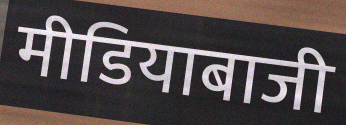
मीडियाबाजी